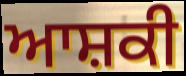
ਆਸ਼ਕੀ